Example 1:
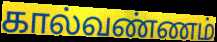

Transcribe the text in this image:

கால்வண்ணம்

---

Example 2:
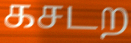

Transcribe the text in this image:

கசடற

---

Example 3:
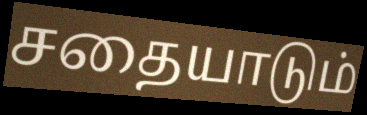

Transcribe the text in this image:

சதையாடும்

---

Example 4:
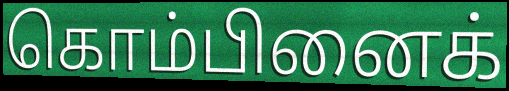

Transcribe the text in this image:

கொம்பினைக்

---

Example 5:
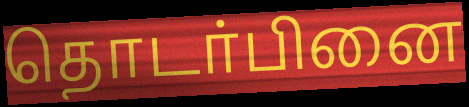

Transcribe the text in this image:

தொடர்பினை